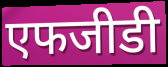
एफजीडी